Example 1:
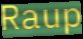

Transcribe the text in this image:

Raup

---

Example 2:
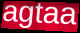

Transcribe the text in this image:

agtaa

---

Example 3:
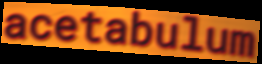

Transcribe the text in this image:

acetabulum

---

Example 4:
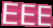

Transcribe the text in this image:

EEE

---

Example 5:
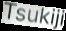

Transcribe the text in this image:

Tsukiji